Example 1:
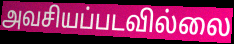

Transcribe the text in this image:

அவசியப்படவில்லை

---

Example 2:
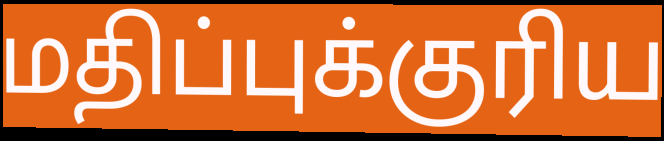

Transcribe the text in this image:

மதிப்புக்குரிய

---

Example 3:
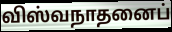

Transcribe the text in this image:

விஸ்வநாதனைப்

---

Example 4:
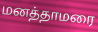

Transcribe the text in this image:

மனத்தாமரை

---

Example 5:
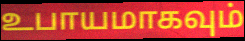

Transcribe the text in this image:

உபாயமாகவும்